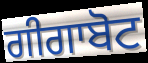
ਗੀਗਾਬੋਟ